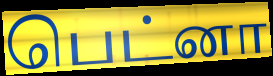
பெட்னா